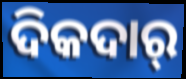
ଦିକଦାର୍